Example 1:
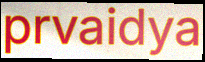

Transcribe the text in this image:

prvaidya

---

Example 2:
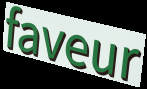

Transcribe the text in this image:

faveur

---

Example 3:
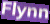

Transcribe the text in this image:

Flynn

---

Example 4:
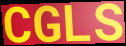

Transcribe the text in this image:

CGLS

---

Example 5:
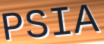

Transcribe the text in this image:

PSIA